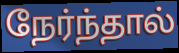
நேர்ந்தால்